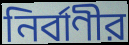
নির্বাণীর